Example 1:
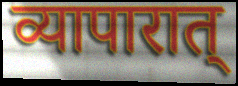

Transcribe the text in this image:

व्यापारात्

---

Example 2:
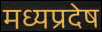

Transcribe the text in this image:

मध्यप्रदेष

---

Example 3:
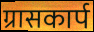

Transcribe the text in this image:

ग्रासकार्प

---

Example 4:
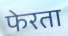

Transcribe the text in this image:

फेरता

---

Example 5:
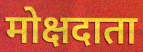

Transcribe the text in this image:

मोक्षदाता